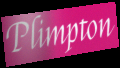
Plimpton